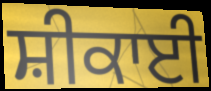
ਸ਼ੀਕਾਈ